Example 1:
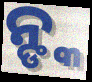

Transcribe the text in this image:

ନ୍ଙ୍କ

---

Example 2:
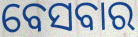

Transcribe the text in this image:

ବେସବାର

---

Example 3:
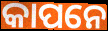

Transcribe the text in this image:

କାପନେ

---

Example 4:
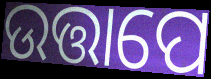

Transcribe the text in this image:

ଉତ୍ତାପେ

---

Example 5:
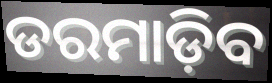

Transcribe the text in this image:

ଡରମାଡ଼ିବ